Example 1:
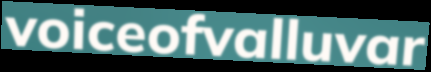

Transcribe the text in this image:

voiceofvalluvar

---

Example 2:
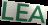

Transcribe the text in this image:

LEA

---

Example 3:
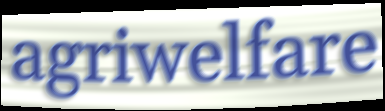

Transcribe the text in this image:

agriwelfare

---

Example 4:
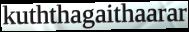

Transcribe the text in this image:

kuththagaithaarar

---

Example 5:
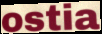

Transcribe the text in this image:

ostia